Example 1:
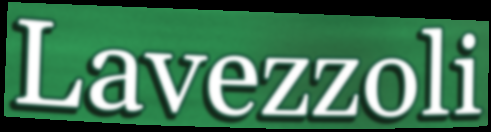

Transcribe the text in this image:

Lavezzoli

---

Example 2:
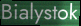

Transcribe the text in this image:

Bialystok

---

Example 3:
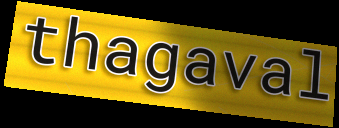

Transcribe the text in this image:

thagaval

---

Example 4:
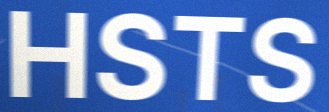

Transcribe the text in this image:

HSTS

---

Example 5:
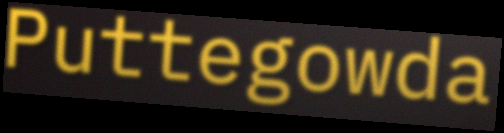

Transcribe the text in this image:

Puttegowda